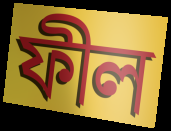
ফীল